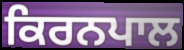
ਕਿਰਨਪਾਲ